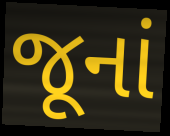
જૂનાં